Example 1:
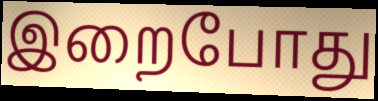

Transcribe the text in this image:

இறைபோது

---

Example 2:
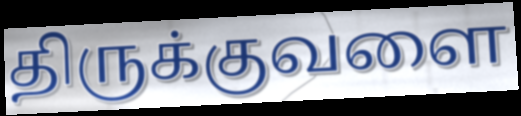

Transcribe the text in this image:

திருக்குவளை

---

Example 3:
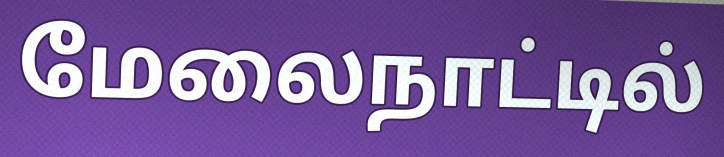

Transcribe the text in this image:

மேலைநாட்டில்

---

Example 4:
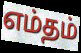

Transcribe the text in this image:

எம்தம்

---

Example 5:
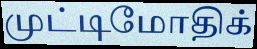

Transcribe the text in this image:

முட்டிமோதிக்